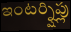
ఇంటర్న్షిప్లు